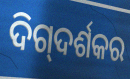
ଦିଗ୍‌ଦର୍ଶକର